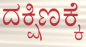
ದಕ್ಷಿಣಕ್ಕೆ